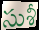
సుశీ